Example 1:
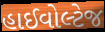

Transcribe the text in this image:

હાઈવોલ્ટેજ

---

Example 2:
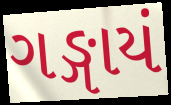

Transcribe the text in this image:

ગઙ્ગાયં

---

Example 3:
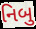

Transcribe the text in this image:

નિબુ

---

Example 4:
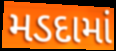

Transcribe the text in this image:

મડદામાં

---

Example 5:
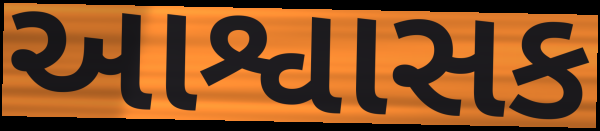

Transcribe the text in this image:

આશ્વાસક